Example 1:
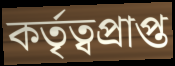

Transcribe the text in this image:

কৰ্তৃত্বপ্ৰাপ্ত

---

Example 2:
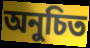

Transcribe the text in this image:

অনুচিত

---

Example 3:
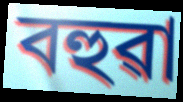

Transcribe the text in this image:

বহুৱা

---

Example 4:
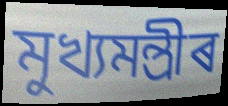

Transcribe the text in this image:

মুখ্যমন্ত্ৰীৰ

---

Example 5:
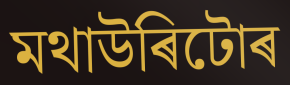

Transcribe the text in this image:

মথাউৰিটোৰ